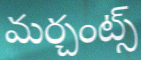
మర్చంట్స్